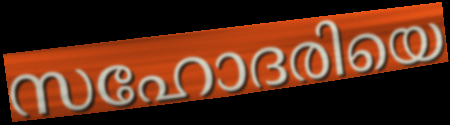
സഹോദരിയെ